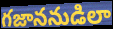
గజాననుడిలా